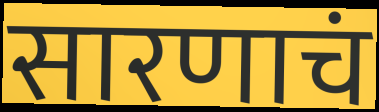
सारणाचं